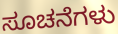
ಸೂಚನೆಗಳು